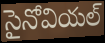
సైనోవియల్